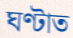
ঘণ্টাত